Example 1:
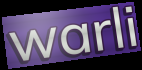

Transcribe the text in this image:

warli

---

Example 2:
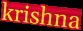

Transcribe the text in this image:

krishna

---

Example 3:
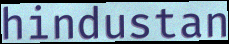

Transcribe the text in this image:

hindustan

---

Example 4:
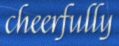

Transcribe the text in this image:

cheerfully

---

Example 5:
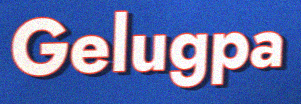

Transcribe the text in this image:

Gelugpa